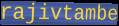
rajivtambe